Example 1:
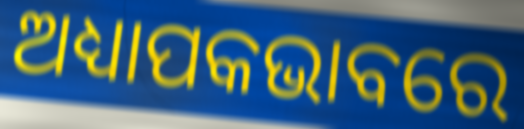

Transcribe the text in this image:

ଅଧ୍ୟାପକଭାବରେ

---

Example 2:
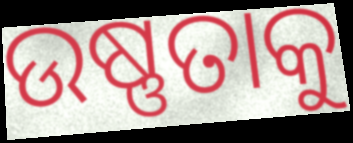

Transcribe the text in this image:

ଉଷ୍ଣତାକୁ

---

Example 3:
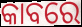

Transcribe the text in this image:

କାବରେ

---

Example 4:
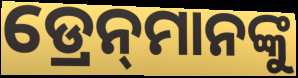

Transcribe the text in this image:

ଡ୍ରେନ୍‌ମାନଙ୍କୁ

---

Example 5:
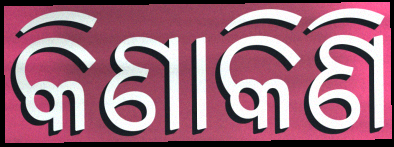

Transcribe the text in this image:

କିଣାକିଣି